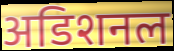
अडिशनल